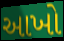
આખો